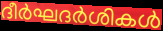
ദീർഘദർശികൾ